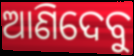
ଆଣିଦେବୁ